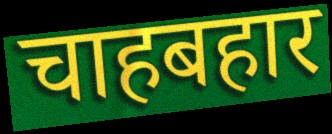
चाहबहार